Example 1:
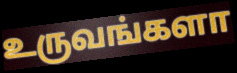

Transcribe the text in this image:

உருவங்களா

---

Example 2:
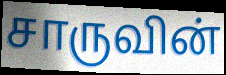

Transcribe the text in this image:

சாருவின்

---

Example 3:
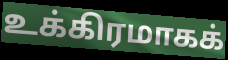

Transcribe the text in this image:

உக்கிரமாகக்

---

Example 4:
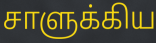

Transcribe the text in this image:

சாளுக்கிய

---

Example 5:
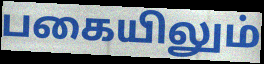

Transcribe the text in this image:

பகையிலும்